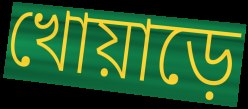
খোয়াড়ে